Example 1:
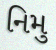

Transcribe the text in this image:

નિમુ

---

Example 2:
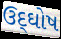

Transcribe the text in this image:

ઉદ્‌ઘોષ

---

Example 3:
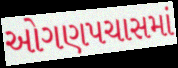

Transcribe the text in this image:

ઓગણપચાસમાં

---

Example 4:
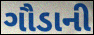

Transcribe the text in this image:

ગૌડાની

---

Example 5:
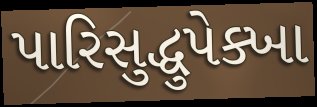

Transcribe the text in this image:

પારિસુદ્ધુપેક્ખા